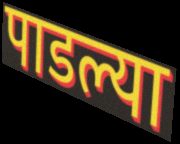
पाडल्या